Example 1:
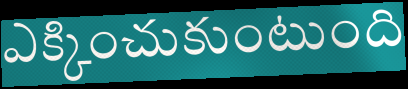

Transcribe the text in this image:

ఎక్కించుకుంటుంది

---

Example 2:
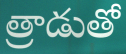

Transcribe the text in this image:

త్రాడుతో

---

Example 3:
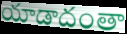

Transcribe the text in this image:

యాడాదంతా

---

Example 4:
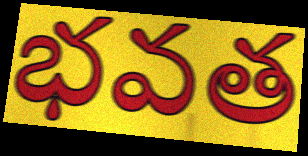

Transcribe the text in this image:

భవత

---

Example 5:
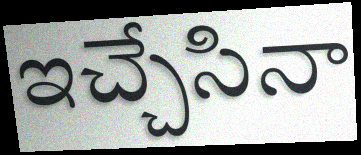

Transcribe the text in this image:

ఇచ్చేసినా